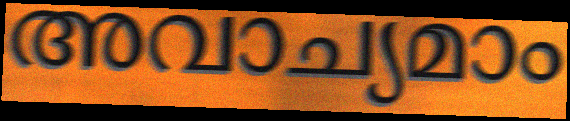
അവാച്യമാം